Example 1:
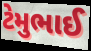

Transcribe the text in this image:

ટેમુભાઈ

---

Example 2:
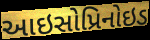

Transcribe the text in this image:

આઇસોપ્રિનોઇડ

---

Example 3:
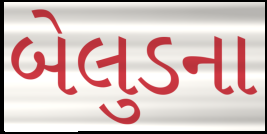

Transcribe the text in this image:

બેલુડના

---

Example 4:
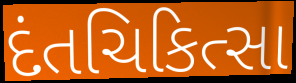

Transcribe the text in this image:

દંતચિકિત્સા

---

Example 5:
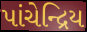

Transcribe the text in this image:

પાંચેન્દ્રિય